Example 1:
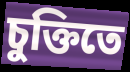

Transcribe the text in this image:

চুক্তিতে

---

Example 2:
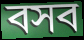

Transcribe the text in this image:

বসব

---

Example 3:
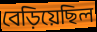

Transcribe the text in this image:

বেড়িয়েছিল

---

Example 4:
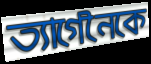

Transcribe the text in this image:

ত্যাগেনৈকে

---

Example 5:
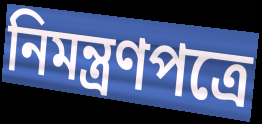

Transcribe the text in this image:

নিমন্ত্রণপত্রে